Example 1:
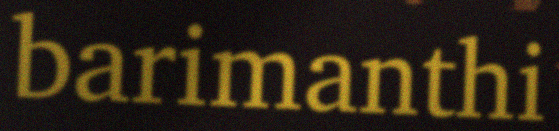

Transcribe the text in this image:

barimanthi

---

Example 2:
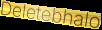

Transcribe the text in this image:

Deletebhalo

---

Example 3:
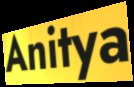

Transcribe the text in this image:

Anitya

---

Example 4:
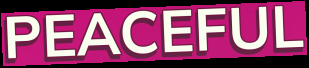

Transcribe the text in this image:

PEACEFUL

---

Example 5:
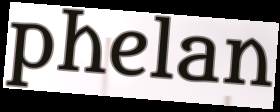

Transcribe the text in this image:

phelan